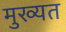
मुख्यत